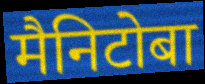
मैनिटोबा